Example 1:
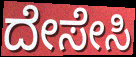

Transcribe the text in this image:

ದೇಸೇಸಿ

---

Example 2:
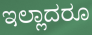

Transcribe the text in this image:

ಇಲ್ಲಾದರೂ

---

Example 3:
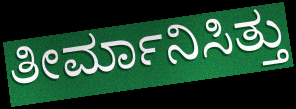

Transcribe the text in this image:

ತೀರ್ಮಾನಿಸಿತ್ತು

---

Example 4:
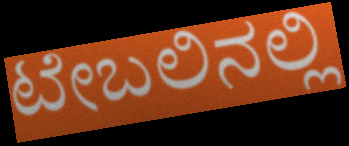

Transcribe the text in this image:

ಟೇಬಲಿನಲ್ಲಿ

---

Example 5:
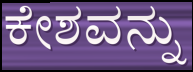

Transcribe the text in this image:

ಕೇಶವನ್ನು